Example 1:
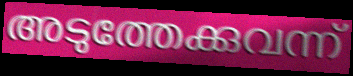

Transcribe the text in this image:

അടുത്തേക്കുവന്ന്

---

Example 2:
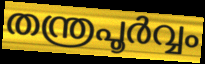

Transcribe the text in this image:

തന്ത്രപൂർവ്വം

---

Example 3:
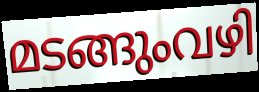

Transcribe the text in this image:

മടങ്ങുംവഴി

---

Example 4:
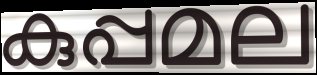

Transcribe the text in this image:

കുപ്പമല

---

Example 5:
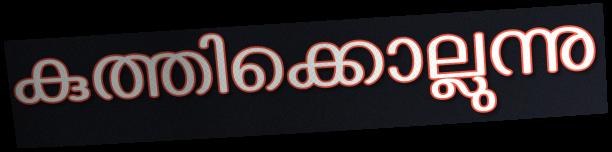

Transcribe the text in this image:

കുത്തിക്കൊല്ലുന്നു